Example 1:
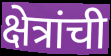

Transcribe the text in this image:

क्षेत्रांची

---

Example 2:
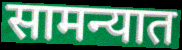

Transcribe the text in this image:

सामन्यात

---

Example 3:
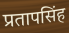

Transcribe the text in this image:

प्रतापसिंह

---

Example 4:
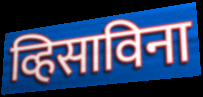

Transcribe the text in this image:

व्हिसाविना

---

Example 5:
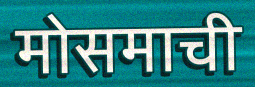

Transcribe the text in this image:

मोसमाची